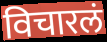
विचारलं